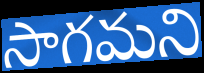
సాగమని